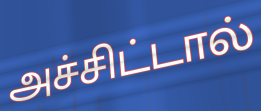
அச்சிட்டால்